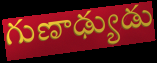
గుణాఢ్యుడు